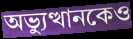
অভ্যুত্থানকেও